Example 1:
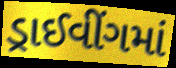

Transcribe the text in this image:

ડ્રાઈવીંગમાં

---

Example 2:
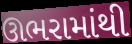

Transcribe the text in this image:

ઊભરામાંથી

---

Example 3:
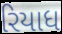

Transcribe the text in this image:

રિયાધ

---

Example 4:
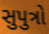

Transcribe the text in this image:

સુપુત્રો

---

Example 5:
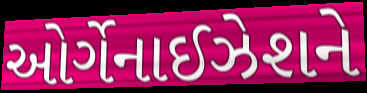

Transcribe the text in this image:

ઓર્ગેનાઈઝેશને